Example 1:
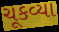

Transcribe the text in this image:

ચૂકવ્યા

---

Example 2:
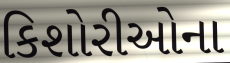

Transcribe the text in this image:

કિશોરીઓના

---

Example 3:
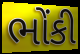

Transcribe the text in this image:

ભોંકી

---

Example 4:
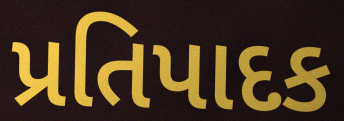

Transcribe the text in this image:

પ્રતિપાદક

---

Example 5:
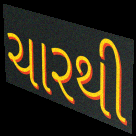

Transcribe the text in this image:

ચારથી